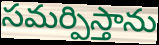
సమర్పిస్తాను